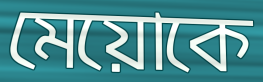
মেয়োকে